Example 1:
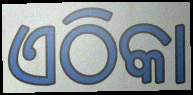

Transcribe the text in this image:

ଏଠିକା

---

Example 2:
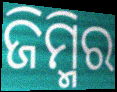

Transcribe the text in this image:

ଜିମ୍ମିର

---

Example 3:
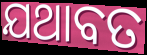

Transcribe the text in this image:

ଯଥାବତ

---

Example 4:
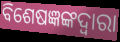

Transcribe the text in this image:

ବିଶେଷଜ୍ଞଙ୍କଦ୍ୱାରା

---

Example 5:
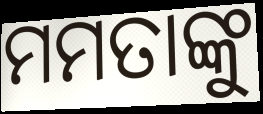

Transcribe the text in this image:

ମମତାଙ୍କୁ